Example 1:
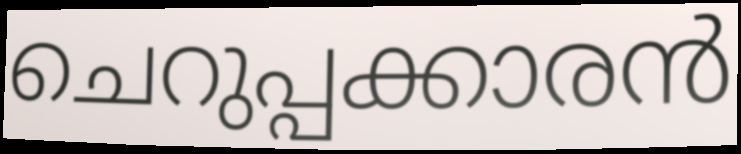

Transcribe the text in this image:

ചെറുപ്പക്കാരൻ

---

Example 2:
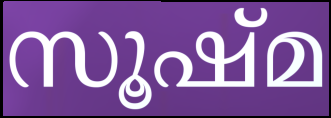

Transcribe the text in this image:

സൂഷ്മ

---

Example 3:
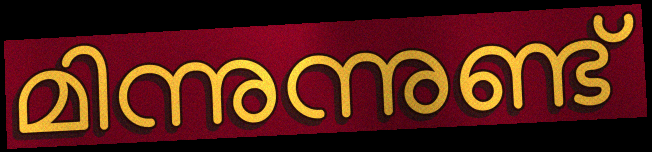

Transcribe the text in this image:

മിന്നുന്നുണ്ട്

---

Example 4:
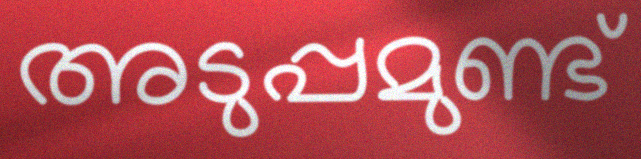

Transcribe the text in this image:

അടുപ്പമുണ്ട്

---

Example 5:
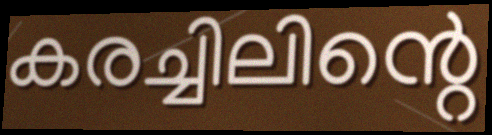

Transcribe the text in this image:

കരച്ചിലിന്റെ